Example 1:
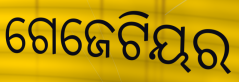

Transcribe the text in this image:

ଗେଜେଟିୟର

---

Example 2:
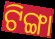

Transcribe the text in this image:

ଟିଙ୍ଗା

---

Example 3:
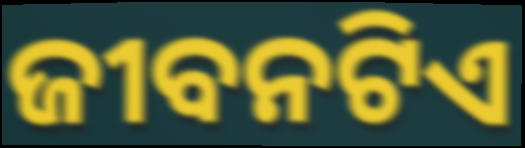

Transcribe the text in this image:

ଜୀବନଟିଏ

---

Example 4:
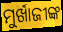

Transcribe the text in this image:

ମୁର୍ଖାଜୀଙ୍କ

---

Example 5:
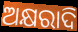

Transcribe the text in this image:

ଅକ୍ଷରାଦି